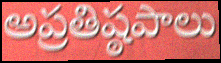
అప్రతిష్ఠపాలు